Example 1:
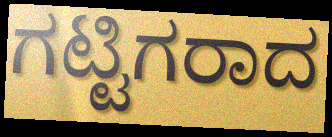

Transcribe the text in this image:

ಗಟ್ಟಿಗರಾದ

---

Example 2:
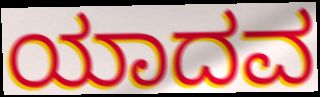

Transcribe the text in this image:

ಯಾದವ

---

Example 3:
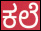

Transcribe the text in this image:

ಕಲೆ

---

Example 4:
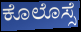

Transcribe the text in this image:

ಕೊಲೊಸ್ಸೆ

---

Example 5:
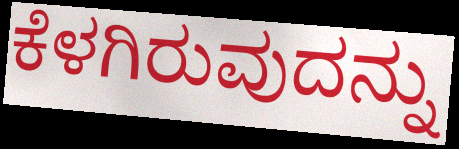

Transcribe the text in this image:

ಕೆಳಗಿರುವುದನ್ನು